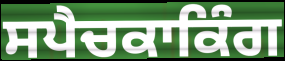
ਸਪੈਚਕਾਕਿੰਗ